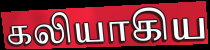
கலியாகிய